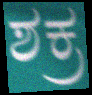
ಶಕ್ರ